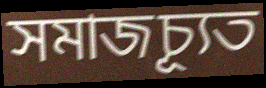
সমাজচ্যূত